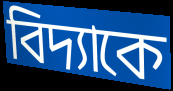
বিদ্যাকে